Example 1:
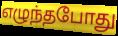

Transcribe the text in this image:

எழுந்தபோது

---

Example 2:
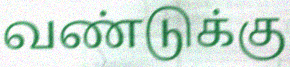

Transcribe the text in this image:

வண்டுக்கு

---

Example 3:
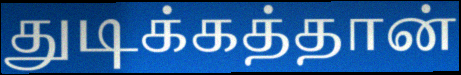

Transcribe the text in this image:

துடிக்கத்தான்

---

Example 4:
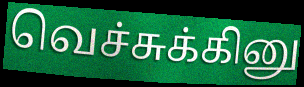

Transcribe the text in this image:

வெச்சுக்கினு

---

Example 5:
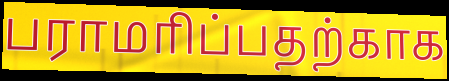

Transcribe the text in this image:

பராமரிப்பதற்காக